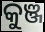
କୁଞ୍ଜ